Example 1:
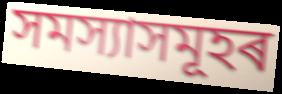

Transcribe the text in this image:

সমস্যাসমূহৰ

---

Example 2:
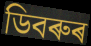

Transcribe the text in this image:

ডিবৰুৰ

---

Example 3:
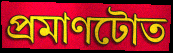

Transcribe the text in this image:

প্ৰমাণটোত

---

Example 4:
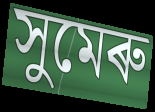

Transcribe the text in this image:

সুমেৰু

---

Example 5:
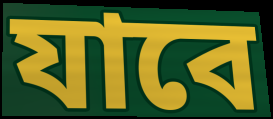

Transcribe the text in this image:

যাবে